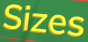
Sizes